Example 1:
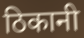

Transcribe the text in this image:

ठिकानी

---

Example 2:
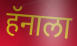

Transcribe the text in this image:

हॅनाला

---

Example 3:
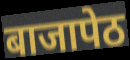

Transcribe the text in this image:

बाजापेठ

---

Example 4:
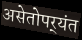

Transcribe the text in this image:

असेतोपर्यंत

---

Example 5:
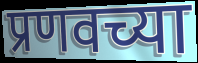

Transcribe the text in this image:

प्रणवच्या